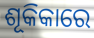
ଶୂକିକାରେ